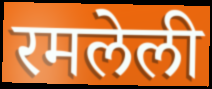
रमलेली